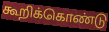
கூறிக்கொண்டு